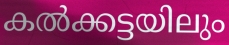
കൽക്കട്ടയിലും